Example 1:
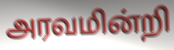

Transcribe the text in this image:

அரவமின்றி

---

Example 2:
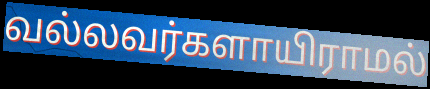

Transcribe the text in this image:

வல்லவர்களாயிராமல்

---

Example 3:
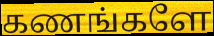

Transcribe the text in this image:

கணங்களே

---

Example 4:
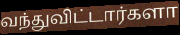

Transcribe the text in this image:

வந்துவிட்டார்களா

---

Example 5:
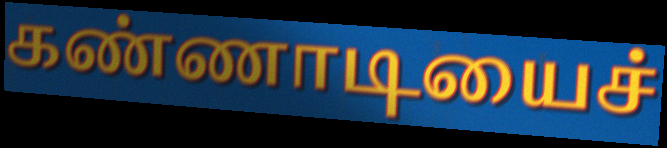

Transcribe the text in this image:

கண்ணாடியைச்